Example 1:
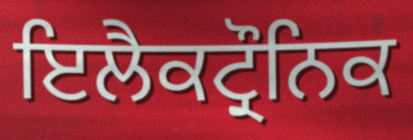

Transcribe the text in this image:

ਇਲੈਕਟ੍ਰੌਨਿਕ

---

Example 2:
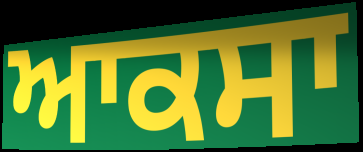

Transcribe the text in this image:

ਆਕਸਾ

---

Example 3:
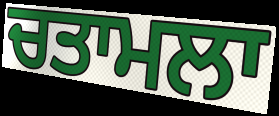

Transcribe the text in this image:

ਚਤਾਮਲਾ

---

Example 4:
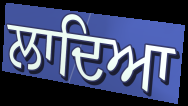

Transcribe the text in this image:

ਲਾਦਿਆ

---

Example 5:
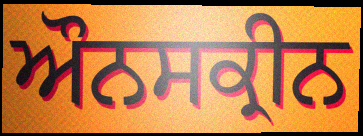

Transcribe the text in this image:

ਔਨਸਕ੍ਰੀਨ